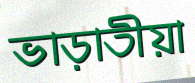
ভাড়াতীয়া